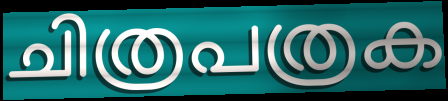
ചിത്രപത്രക